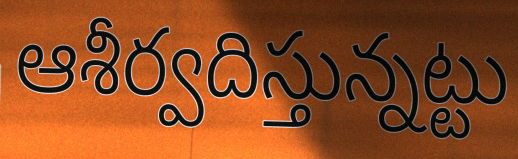
ఆశీర్వదిస్తున్నట్టు